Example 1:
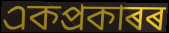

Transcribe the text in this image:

একপ্ৰকাৰৰ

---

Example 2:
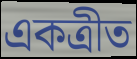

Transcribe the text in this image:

একত্ৰীত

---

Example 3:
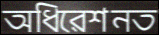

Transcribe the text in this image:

অধিৱেশনত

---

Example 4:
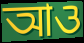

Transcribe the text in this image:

আও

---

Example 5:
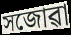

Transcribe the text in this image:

সজোৱা